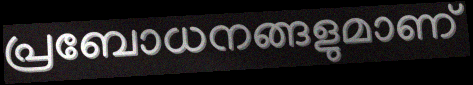
പ്രബോധനങ്ങളുമാണ്